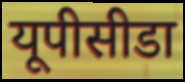
यूपीसीडा